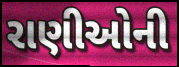
રાણીઓની